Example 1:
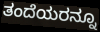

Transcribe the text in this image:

ತಂದೆಯರನ್ನೂ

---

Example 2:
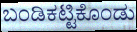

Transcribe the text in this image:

ಬಂಡಿಕಟ್ಟಿಕೊಂಡು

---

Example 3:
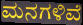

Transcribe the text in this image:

ಮನಗಳಿವೆ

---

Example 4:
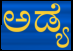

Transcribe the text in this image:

ಅಡ್ಯೆ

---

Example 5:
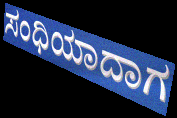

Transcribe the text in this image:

ಸಂಧಿಯಾದಾಗ